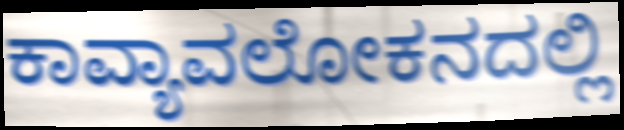
ಕಾವ್ಯಾವಲೋಕನದಲ್ಲಿ